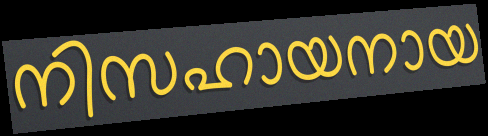
നിസഹായനായ